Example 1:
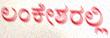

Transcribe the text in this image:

ಲಂಕೇಶರಲ್ಲಿ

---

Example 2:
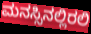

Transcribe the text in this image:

ಮನಸ್ಸಿನಲ್ಲಿರಲಿ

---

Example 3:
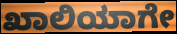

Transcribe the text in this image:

ಖಾಲಿಯಾಗೇ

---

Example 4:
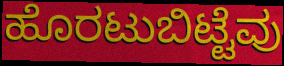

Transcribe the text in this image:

ಹೊರಟುಬಿಟ್ಟೆವು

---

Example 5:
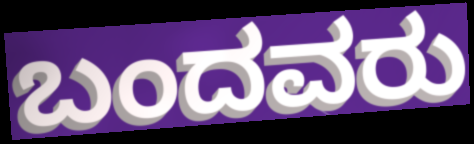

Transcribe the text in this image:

ಬಂದವರು